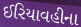
ઈરિયાવહીના